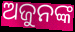
ଅଜୁନଙ୍କ